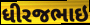
ધીરજભાઇ